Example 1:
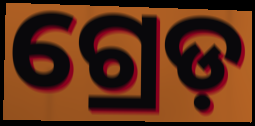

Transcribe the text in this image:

ଗ୍ରେଡ଼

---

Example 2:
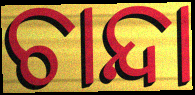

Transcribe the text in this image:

ଚାନ୍ଦା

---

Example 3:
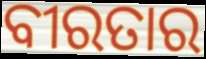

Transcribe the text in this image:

ବୀରତାର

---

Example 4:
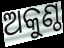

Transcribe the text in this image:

ଅକୁଣ୍ଠ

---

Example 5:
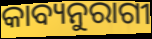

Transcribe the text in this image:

କାବ୍ୟନୁରାଗୀ